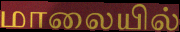
மாலையில்